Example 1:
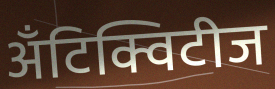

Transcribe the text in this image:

अँटिक्विटीज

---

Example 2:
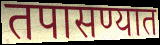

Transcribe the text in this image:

तपासण्यात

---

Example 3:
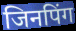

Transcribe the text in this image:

जिनपिंग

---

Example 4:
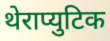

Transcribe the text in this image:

थेराप्युटिक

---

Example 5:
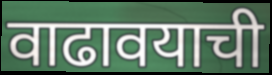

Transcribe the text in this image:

वाढावयाची